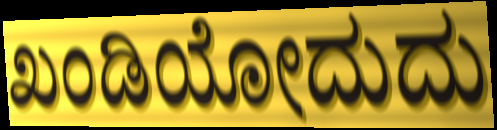
ಖಂಡಿಯೋದುದು